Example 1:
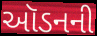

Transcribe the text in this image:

ઑડનની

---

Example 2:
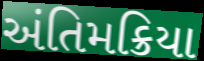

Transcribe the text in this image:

અંતિમક્રિયા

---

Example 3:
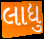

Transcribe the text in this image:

લાદ્યુ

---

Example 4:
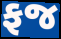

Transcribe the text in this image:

ફજ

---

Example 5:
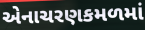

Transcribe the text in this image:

એનાચરણકમળમાં